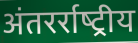
अंतरर्राष्ट्रीय